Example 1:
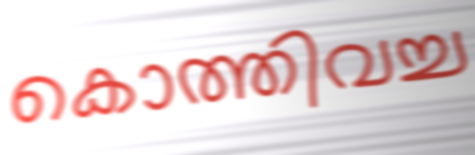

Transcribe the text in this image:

കൊത്തിവച്ച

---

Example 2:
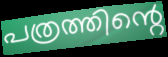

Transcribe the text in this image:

പത്രത്തിന്റെ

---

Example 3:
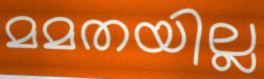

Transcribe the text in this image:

മമതയില്ല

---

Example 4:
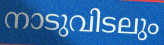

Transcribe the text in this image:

നാടുവിടലും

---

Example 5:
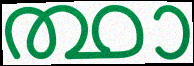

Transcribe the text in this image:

ത്ഥാ